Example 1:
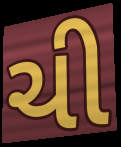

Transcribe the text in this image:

ચી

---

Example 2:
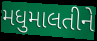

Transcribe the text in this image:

મધુમાલતીને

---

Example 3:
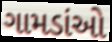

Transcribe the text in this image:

ગામડાંઓ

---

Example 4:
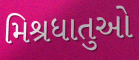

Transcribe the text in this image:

મિશ્રધાતુઓ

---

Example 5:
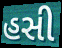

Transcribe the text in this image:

હસી